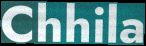
Chhila